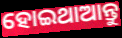
ହୋଇଥାଆନ୍ତୁ